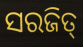
ସରଜିତ୍